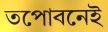
তপোবনেই